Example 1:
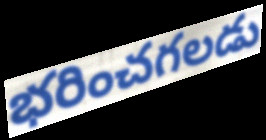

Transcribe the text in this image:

భరించగలడు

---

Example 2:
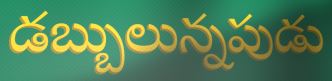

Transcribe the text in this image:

డబ్బులున్నపుడు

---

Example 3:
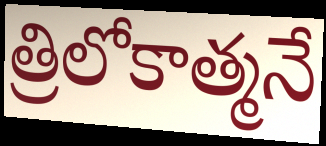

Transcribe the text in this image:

త్రిలోకాత్మనే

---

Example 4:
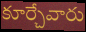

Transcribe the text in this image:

కూర్చేవారు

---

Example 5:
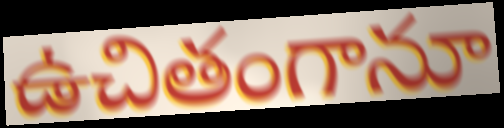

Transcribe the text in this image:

ఉచితంగానూ